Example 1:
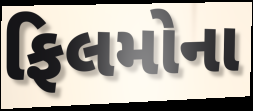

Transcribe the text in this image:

ફિલમોના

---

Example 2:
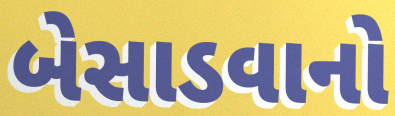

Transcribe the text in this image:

બેસાડવાનો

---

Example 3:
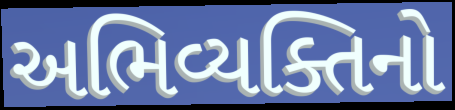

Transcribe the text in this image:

અભિવ્યક્તિનો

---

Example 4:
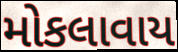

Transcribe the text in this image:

મોકલાવાય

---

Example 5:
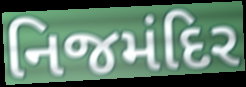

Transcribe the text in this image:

નિજમંદિર